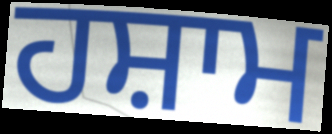
ਹਸ਼ਾਮ